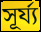
সূর্য্য